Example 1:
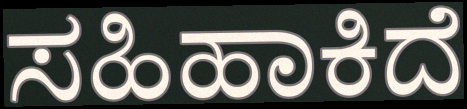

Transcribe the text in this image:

ಸಹಿಹಾಕಿದೆ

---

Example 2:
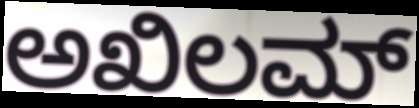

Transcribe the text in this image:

ಅಖಿಲಮ್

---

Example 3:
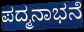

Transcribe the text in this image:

ಪದ್ಮನಾಭನೆ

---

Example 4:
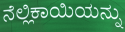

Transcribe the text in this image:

ನೆಲ್ಲಿಕಾಯಿಯನ್ನು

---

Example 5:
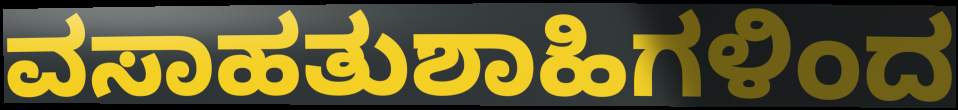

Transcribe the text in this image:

ವಸಾಹತುಶಾಹಿಗಳಿಂದ